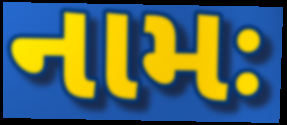
નામઃ